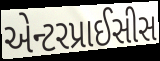
એન્ટરપ્રાઈસીસ